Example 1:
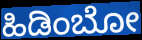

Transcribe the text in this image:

ಹಿಡಿಂಬೋ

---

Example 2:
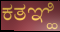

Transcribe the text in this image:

ಕತಞ್ಹಿ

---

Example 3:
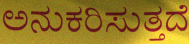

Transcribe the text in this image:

ಅನುಕರಿಸುತ್ತದೆ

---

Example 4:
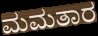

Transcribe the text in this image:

ಮಮತಾರ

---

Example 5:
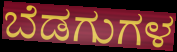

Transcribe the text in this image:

ಬೆಡಗುಗಳ